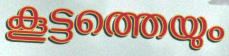
കൂട്ടത്തെയും